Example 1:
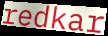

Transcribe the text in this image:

redkar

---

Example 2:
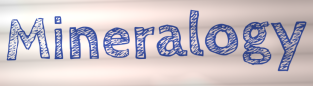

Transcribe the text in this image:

Mineralogy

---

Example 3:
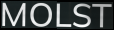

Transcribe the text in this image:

MOLST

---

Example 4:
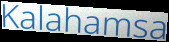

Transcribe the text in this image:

Kalahamsa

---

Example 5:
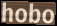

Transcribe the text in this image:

hobo